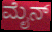
ಮೈನ್